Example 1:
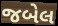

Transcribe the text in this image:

જબેલ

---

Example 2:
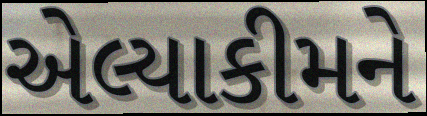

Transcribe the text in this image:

એલ્યાકીમને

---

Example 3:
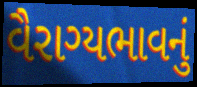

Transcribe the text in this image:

વૈરાગ્યભાવનું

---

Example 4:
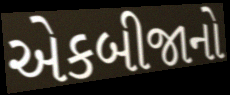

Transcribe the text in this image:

એકબીજાનો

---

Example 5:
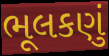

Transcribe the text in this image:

ભૂલકણું